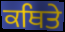
ਕਥਿਤੇ